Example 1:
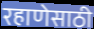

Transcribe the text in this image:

रहाणेसाठी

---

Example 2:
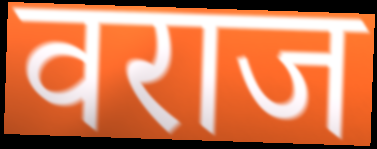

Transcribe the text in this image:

वराज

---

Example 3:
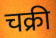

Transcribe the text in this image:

चक्री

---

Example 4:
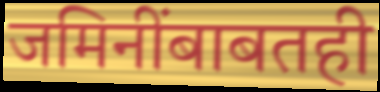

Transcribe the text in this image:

जमिनींबाबतही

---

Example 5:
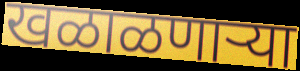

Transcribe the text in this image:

खळाळणाऱ्या